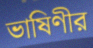
ভাষিণীর